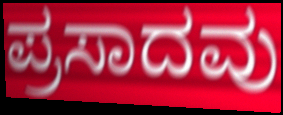
ಪ್ರಸಾದವು